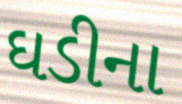
ઘડીના